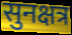
सुनक्षत्र